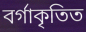
বৰ্গাকৃতিত